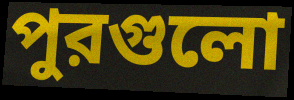
পুরগুলো